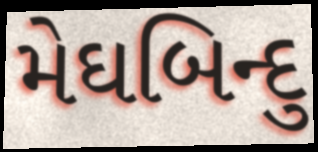
મેઘબિન્દુ